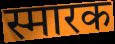
स्मारक